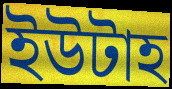
ইউটাহ